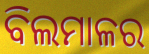
ବିଲମାଳର